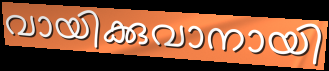
വായിക്കുവാനായി